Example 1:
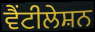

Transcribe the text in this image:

ਵੈਂਟੀਲੇਸ਼ਨ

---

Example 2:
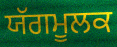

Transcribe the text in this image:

ਯੱਗਮੂਲਕ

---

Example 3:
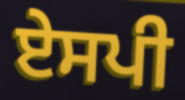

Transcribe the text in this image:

ਏਸਪੀ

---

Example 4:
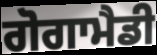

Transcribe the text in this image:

ਗੋਗਾਮੈਡੀ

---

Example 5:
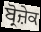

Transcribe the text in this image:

ਬ੍ਰੋਜ਼ੇਕ